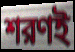
শরণই